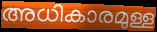
അധികാരമുള്ള